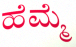
ಹೆಮ್ಮೆ